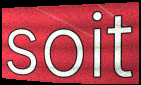
soit